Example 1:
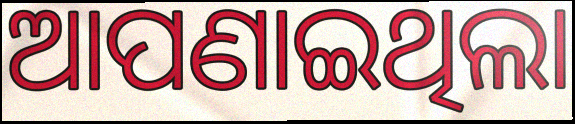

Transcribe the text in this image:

ଆପଣାଇଥିଲା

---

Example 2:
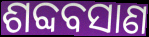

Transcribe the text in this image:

ଶବ୍ଦବସାଣ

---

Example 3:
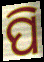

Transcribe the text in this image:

ପି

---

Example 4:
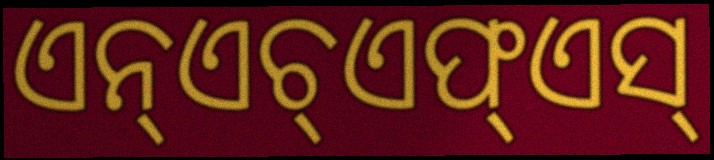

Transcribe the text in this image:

ଏନ୍ଏଚ୍ଏଫ୍ଏସ୍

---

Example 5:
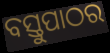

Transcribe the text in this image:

ବସ୍ତୁପାଠର